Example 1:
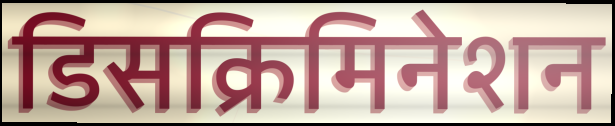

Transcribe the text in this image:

डिसक्रिमिनेशन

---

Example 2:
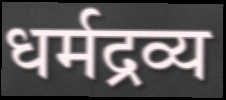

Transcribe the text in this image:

धर्मद्रव्य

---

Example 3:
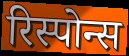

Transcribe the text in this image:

रिस्पोन्स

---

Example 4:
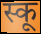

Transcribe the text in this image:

स्कू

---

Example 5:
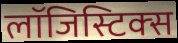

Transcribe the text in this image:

लॉजिस्टिक्‍स